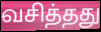
வசித்தது